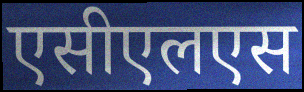
एसीएलएस